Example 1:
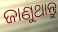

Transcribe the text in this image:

ଜାଣୁଥାନ୍ତୁ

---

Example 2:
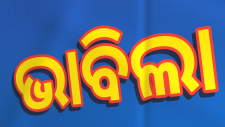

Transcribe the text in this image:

ଭାବିଲା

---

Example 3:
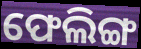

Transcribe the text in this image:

ଫେଲିଙ୍ଗ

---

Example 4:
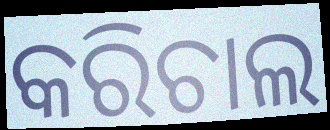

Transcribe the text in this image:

କରିଚାଲ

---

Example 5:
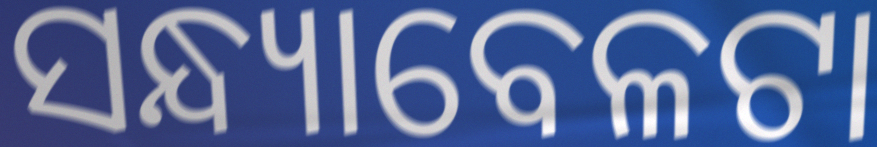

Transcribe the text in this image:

ସନ୍ଧ୍ୟାବେଳଟା